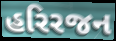
હરિરજન